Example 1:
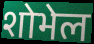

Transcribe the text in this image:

शोभेल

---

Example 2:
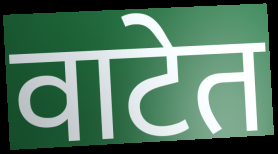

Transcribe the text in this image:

वाटेत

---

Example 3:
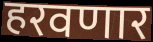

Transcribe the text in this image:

हरवणार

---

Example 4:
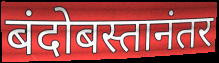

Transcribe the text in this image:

बंदोबस्तानंतर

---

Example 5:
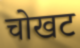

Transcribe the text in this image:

चोखट